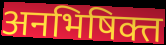
अनभिषिक्त